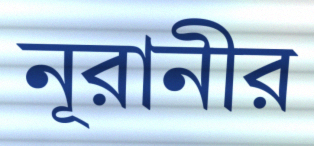
নূরানীর